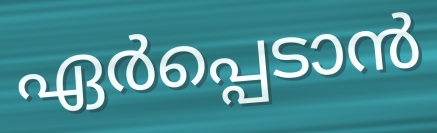
ഏർപ്പെടാൻ